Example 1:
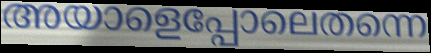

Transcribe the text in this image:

അയാളെപ്പോലെതന്നെ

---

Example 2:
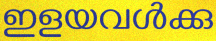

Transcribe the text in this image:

ഇളയവൾക്കു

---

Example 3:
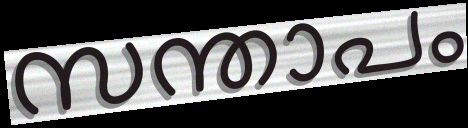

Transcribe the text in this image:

സന്താപം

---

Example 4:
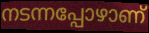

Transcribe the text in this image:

നടന്നപ്പോഴാണ്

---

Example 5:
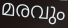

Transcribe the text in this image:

മരവും